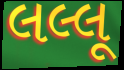
લલ્લૂ